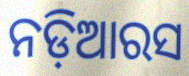
ନଡ଼ିଆରସ